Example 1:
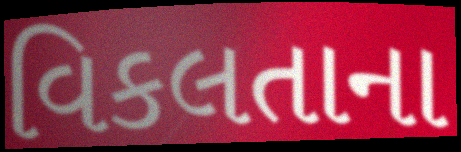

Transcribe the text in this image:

વિકલતાના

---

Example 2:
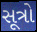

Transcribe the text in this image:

સૂત્રો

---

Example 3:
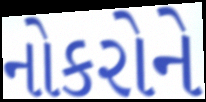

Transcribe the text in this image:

નોકરોને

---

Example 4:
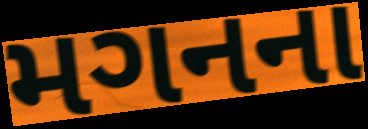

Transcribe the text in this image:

મગનના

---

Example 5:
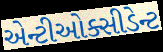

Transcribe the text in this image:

એન્ટીઓક્સીડેન્ટ